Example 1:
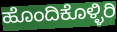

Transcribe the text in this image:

ಹೊಂದಿಕೊಳ್ಳಿರಿ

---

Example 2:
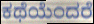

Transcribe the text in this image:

ಕಥೆಯೆಂದರೆ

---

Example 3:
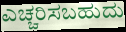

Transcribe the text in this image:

ಎಚ್ಚರಿಸಬಹುದು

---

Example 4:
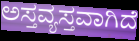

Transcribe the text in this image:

ಅಸ್ತವ್ಯಸ್ತವಾಗಿದೆ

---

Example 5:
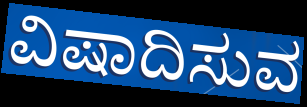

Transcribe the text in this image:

ವಿಷಾದಿಸುವ